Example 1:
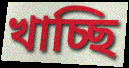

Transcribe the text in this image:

খাচ্ছি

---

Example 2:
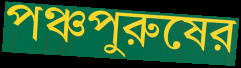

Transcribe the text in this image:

পঞ্চপুরুষের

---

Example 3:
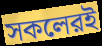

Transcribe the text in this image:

সকলেরই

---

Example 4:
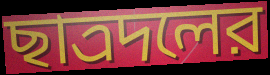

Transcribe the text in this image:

ছাত্রদলের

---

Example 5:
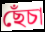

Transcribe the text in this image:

ছেঁচা